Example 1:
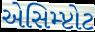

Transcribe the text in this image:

એસિમ્પ્ટોટ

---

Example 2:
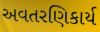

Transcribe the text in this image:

અવતરણિકાર્ય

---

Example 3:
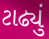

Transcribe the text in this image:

ટાઢ્યું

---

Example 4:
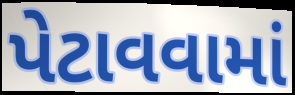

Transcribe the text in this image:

પેટાવવામાં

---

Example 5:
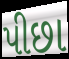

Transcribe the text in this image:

પીછા